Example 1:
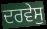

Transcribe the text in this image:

ਦਰਵੇਸੁ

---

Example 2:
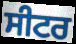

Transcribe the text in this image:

ਸੀਟਰ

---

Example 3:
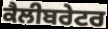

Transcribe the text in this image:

ਕੈਲੀਬਰੇਟਰ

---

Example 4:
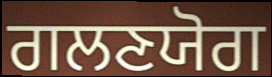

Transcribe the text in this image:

ਗਲਣਯੋਗ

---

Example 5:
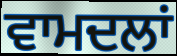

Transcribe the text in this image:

ਵਾਮਦਲਾਂ